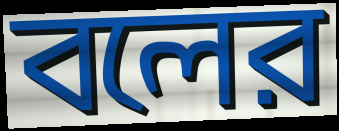
বলের